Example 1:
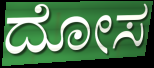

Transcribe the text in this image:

ದೋಸ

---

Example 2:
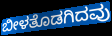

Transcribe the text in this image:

ಬೀಳತೊಡಗಿದವು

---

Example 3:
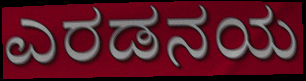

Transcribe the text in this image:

ಎರಡನಯ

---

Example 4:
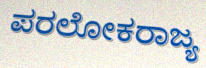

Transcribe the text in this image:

ಪರಲೋಕರಾಜ್ಯ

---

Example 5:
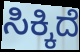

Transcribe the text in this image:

ಸಿಕ್ಕಿದೆ